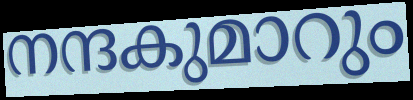
നന്ദകുമാറും